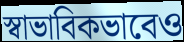
স্বাভাবিকভাবেও